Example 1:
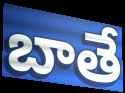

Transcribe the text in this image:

బాతే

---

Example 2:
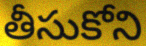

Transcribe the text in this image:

తీసుకోని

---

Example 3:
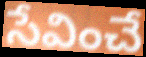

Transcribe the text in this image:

సేవించే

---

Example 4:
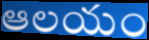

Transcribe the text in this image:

ఆలయం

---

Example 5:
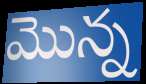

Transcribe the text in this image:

మొన్న